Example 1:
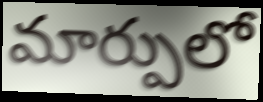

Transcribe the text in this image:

మార్పులో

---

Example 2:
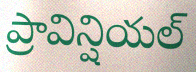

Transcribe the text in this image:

ప్రావిన్షియల్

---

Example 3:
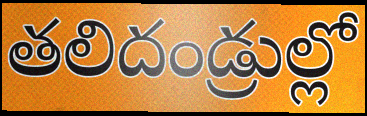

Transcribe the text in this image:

తలిదండ్రుల్లో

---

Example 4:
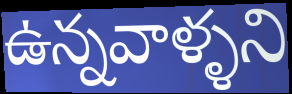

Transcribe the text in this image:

ఉన్నవాళ్ళని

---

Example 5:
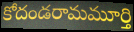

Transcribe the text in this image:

కోదండరామమూర్తి